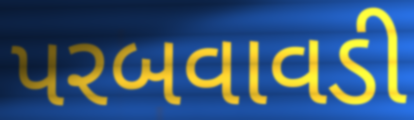
પરબવાવડી